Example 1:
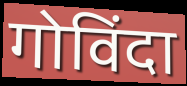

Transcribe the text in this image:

गोविंदा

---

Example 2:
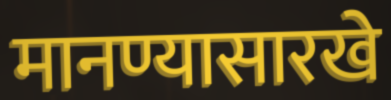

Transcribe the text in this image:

मानण्यासारखे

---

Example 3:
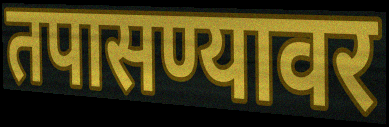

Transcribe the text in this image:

तपासण्यावर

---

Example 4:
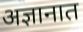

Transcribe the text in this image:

अज्ञानात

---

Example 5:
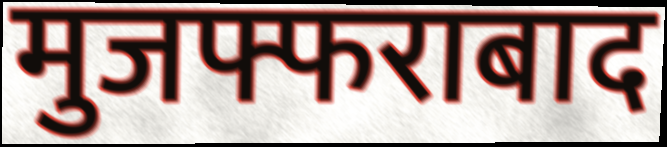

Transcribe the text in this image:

मुजफ्फराबाद